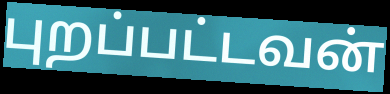
புறப்பட்டவன்